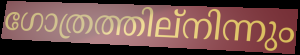
ഗോത്രത്തില്നിന്നും